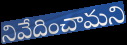
నివేదించామని